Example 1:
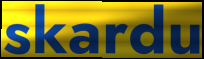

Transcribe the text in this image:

skardu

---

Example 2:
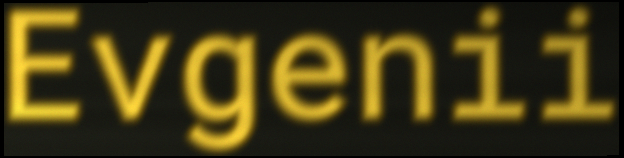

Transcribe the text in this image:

Evgenii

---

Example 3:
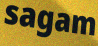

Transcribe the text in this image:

sagam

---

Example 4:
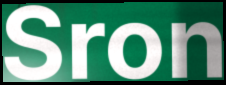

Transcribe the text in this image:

Sron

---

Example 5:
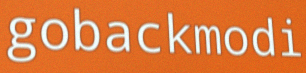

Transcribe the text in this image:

gobackmodi